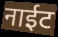
नाईट